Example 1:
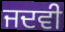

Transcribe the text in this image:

ਜਦਵੀ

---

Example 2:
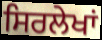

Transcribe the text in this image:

ਸਿਰਲੇਖਾਂ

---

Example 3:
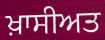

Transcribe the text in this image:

ਖ਼ਾਸੀਅਤ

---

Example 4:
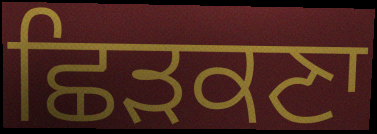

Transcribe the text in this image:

ਛਿੜਕਣਾ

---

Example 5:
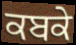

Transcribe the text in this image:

ਕਬਕੇ